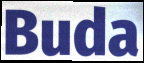
Buda